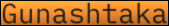
Gunashtaka